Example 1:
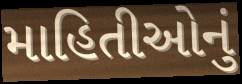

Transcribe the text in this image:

માહિતીઓનું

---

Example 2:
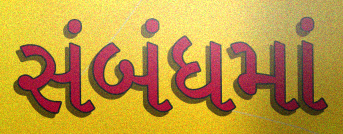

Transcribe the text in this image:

સંબંધમાં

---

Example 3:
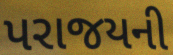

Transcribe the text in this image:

પરાજયની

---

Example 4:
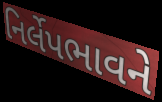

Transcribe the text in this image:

નિર્લેપભાવને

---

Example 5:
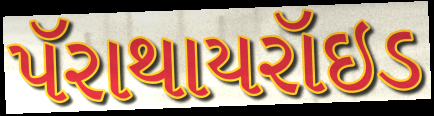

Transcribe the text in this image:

પૅરાથાયરૉઇડ